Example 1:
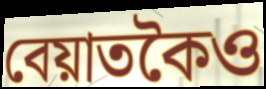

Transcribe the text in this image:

বেয়াতকৈও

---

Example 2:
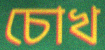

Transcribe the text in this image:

চোখ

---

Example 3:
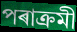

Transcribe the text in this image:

পৰাক্ৰমী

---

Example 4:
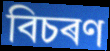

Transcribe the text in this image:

বিচৰণ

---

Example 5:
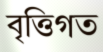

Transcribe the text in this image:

বৃত্তিগত